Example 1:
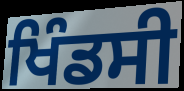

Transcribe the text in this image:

ਖਿੰਡਸੀ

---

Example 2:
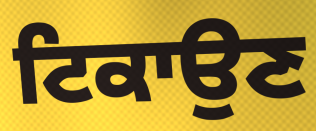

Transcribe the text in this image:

ਟਿਕਾਉਣ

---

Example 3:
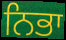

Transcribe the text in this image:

ਨਿਭਾ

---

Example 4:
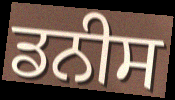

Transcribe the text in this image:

ਡਨੀਸ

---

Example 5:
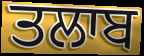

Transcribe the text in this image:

ਤਲਾਬ